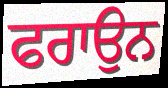
ਫਰਾਉਨ